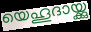
യെഹൂദായ്ക്കു